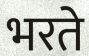
भरते